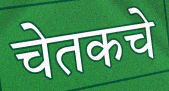
चेतकचे